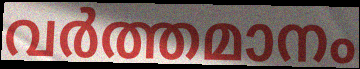
വർത്തമാനം